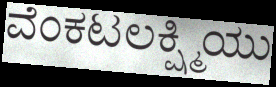
ವೆಂಕಟಲಕ್ಷ್ಮಿಯು